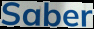
Saber